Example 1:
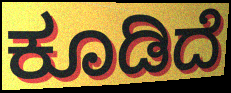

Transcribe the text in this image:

ಕೂಡಿದೆ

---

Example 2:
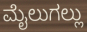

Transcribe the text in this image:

ಮೈಲುಗಲ್ಲು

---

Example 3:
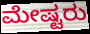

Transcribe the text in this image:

ಮೇಷ್ಟರು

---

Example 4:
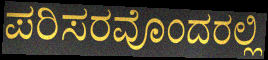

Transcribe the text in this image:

ಪರಿಸರವೊಂದರಲ್ಲಿ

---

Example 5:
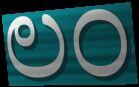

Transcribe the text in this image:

ಲಂ